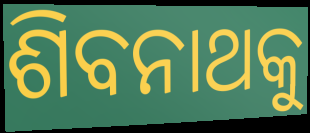
ଶିବନାଥକୁ